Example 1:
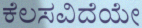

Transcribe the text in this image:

ಕೆಲಸವಿದೆಯೇ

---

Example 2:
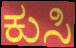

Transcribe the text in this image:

ಕುಸಿ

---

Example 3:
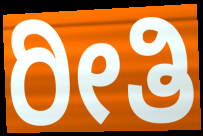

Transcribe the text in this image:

ರೀತಿ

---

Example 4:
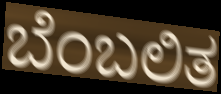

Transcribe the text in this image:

ಬೆಂಬಲಿತ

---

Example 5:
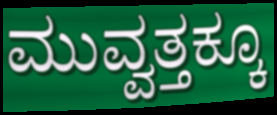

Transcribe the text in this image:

ಮುವ್ವತ್ತಕ್ಕೂ